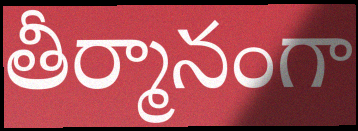
తీర్మానంగా